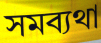
সমব্যথা